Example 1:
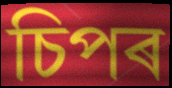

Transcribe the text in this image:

চিপৰ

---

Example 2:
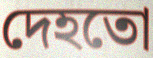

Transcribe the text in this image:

দেহতো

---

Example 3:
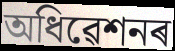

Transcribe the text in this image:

অধিৱেশনৰ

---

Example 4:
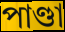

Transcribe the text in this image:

পাণ্ডা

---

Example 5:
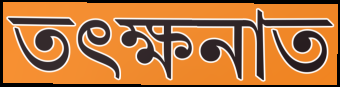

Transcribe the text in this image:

তৎক্ষনাত